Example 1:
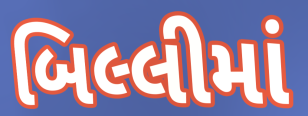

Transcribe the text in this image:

બિલ્લીમાં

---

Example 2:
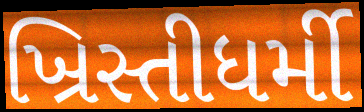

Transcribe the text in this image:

ખ્રિસ્તીધર્મી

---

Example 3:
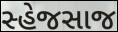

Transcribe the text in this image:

સ્હેજસાજ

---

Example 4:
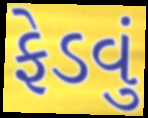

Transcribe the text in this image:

ફેડવું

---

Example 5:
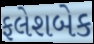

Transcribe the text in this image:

ફલેશબેક